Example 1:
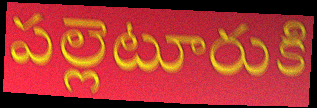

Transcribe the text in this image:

పల్లెటూరుకి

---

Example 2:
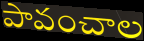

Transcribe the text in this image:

పావంచాల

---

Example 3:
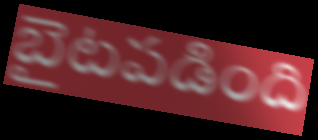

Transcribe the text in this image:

బైటపడింది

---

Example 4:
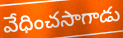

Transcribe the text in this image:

వేధించసాగాడు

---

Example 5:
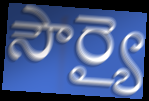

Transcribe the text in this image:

సౌర్యై